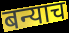
बन्याच